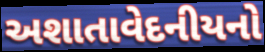
અશાતાવેદનીયનો